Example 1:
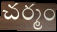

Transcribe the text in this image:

చర్మం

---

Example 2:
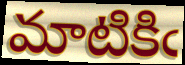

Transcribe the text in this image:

మాటికిఁ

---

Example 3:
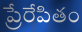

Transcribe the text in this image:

ప్రేరేపితం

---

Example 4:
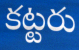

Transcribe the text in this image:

కట్టరు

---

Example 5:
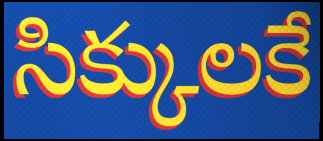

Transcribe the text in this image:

సిక్కులకే